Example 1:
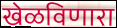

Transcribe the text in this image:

खेळविणारा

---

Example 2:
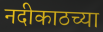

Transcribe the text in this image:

नदीकाठच्या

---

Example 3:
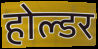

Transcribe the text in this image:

होल्डर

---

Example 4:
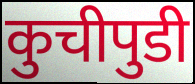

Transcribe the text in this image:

कुचीपुडी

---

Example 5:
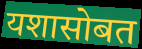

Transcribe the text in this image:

यशासोबत